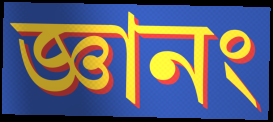
জ্ঞানং